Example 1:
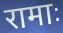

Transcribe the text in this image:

रामाः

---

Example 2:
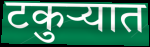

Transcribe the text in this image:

टकुर्‍यात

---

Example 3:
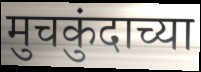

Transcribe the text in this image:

मुचकुंदाच्या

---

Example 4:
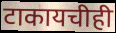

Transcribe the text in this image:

टाकायचीही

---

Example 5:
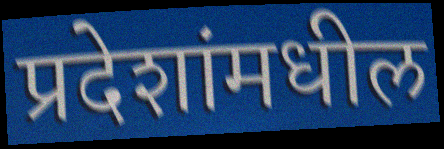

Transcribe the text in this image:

प्रदेशांमधील